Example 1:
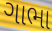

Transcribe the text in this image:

ગાભા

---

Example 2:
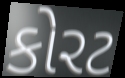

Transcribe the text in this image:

કોરટ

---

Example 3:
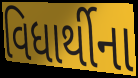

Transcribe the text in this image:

વિધાર્થીના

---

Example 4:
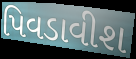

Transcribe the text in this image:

પિવડાવીશ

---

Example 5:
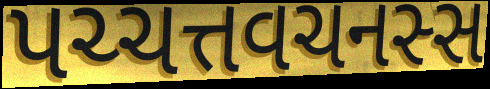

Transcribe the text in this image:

પચ્ચત્તવચનસ્સ